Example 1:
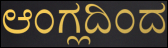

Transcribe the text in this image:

ಆಂಗ್ಲದಿಂದ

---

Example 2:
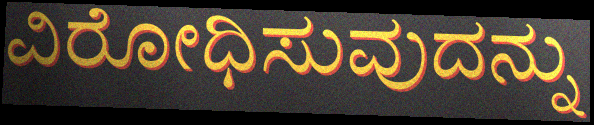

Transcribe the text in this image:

ವಿರೋಧಿಸುವುದನ್ನು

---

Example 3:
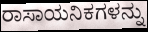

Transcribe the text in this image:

ರಾಸಾಯನಿಕಗಳನ್ನು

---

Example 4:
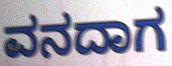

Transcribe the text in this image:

ವನದಾಗ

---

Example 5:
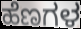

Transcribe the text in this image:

ಹೆಣಗಳ